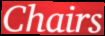
Chairs